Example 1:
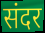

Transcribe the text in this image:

संदर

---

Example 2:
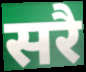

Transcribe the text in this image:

सरै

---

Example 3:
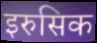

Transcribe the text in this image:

इरुसिक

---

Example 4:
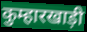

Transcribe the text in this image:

कुम्हारखाड़ी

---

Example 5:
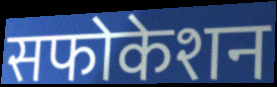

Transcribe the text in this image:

सफोकेशन